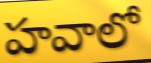
హవాలో